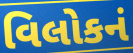
વિલોકનં